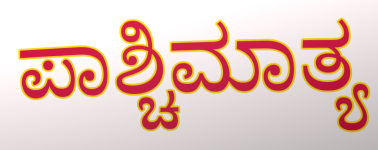
ಪಾಶ್ಚಿಮಾತ್ಯ